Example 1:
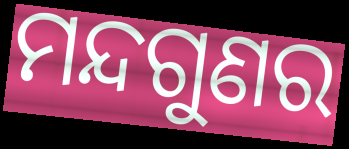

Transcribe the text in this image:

ମନ୍ଦଗୁଣର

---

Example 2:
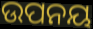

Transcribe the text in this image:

ଉପନୟ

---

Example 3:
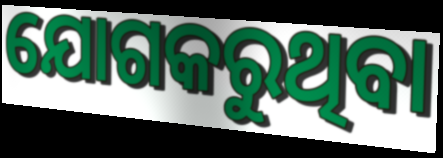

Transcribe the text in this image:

ଯୋଗକରୁଥିବା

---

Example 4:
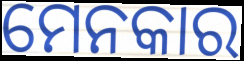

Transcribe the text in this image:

ମେନକାର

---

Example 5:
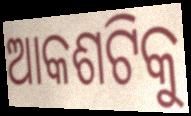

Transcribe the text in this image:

ଆକଶଟିକୁ